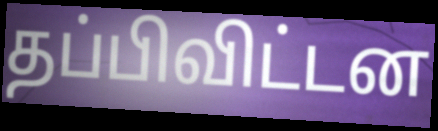
தப்பிவிட்டன